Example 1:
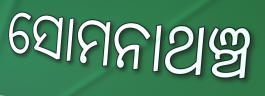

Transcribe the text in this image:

ସୋମନାଥଞ୍ଚ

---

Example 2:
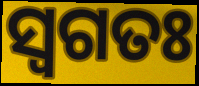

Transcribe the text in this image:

ସ୍ଵଗତଃ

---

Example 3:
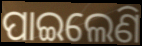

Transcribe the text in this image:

ପାଇଲେଣି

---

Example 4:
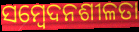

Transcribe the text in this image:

ସମ୍ଵେଦନଶୀଳତା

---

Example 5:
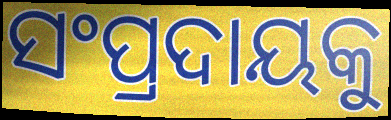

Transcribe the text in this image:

ସଂପ୍ରଦାୟକୁ